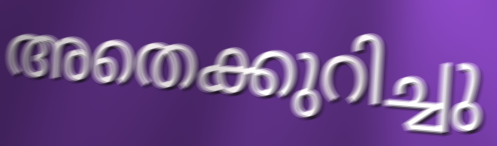
അതെക്കുറിച്ചു